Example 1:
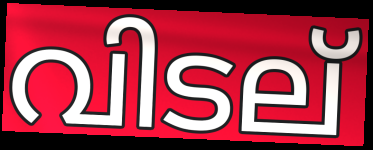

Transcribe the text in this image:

വിടല്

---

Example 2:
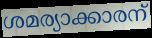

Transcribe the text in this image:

ശമര്യാക്കാരന്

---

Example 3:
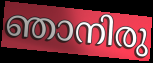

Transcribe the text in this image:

ഞാനിരു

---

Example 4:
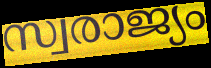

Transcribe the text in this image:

സ്വരാജ്യം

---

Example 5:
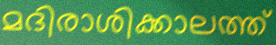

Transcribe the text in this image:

മദിരാശിക്കാലത്ത്